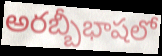
అరబ్బీభాషలో